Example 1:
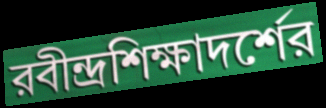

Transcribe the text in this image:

রবীন্দ্রশিক্ষাদর্শের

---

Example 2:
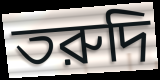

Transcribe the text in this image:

তরুদি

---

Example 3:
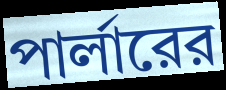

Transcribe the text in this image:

পার্লারের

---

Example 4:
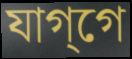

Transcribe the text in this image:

যাগ্‌গে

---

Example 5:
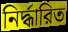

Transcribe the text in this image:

নির্দ্ধারিত